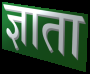
ज्ञाता